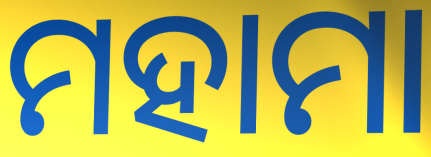
ମହାମା